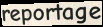
reportage